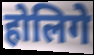
होलिगे